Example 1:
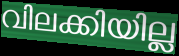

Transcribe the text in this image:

വിലക്കിയില്ല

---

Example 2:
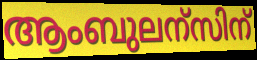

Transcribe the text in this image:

ആംബുലന്സിന്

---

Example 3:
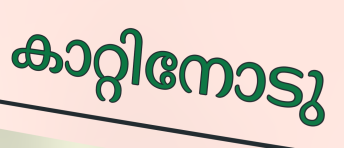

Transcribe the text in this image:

കാറ്റിനോടു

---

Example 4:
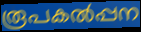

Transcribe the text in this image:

രൂപകൽപ്പന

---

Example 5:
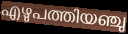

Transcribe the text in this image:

എഴുപത്തിയഞ്ചു